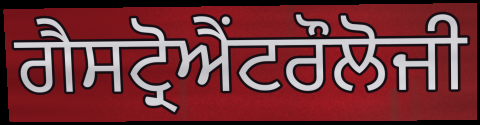
ਗੈਸਟ੍ਰੋਐਂਟਰੌਲੋਜੀ